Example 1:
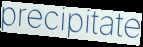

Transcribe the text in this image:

precipitate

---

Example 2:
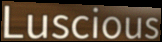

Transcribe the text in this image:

Luscious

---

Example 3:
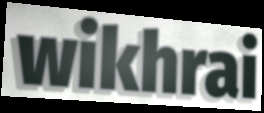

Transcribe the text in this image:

wikhrai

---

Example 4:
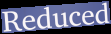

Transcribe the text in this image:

Reduced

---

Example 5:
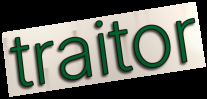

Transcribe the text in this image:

traitor